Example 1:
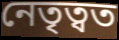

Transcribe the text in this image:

নেতৃত্বত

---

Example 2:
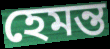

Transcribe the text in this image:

হেমন্ত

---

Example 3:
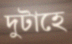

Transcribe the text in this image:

দুটাহে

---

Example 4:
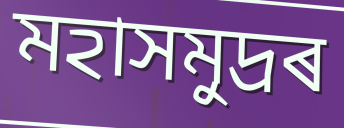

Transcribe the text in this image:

মহাসমুদ্ৰৰ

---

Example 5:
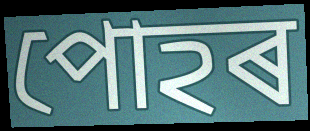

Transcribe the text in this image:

পোহৰ